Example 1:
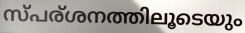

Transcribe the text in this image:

സ്പര്ശനത്തിലൂടെയും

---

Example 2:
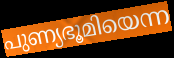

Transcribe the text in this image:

പുണ്യഭൂമിയെന്ന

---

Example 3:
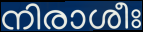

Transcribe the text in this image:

നിരാശീഃ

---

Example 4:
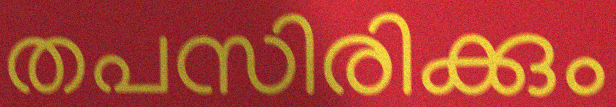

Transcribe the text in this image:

തപസിരിക്കും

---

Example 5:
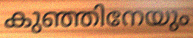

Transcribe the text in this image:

കുഞ്ഞിനേയും